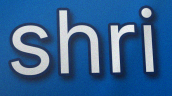
shri